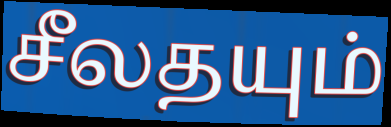
சீலதயும்